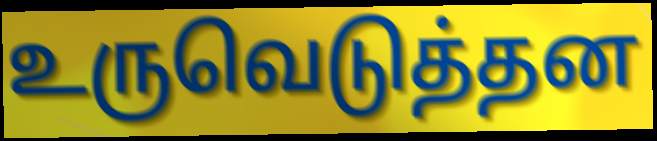
உருவெடுத்தன